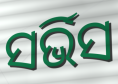
ସର୍ଭିସ